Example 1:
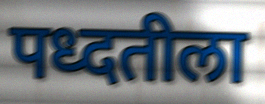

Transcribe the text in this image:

पध्दतीला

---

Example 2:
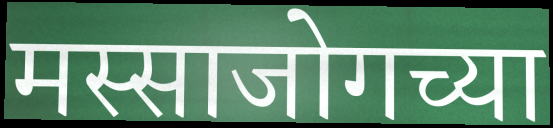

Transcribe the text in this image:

मस्साजोगच्या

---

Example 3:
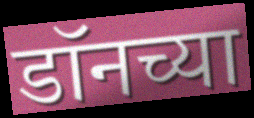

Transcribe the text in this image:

डॉनच्या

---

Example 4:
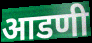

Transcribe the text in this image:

आडणी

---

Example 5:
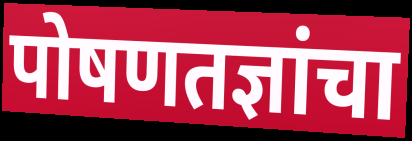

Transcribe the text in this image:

पोषणतज्ञांचा